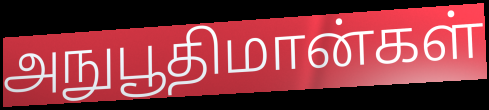
அநுபூதிமான்கள்